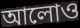
আলোও